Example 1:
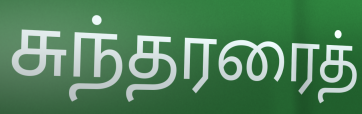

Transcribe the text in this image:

சுந்தரரைத்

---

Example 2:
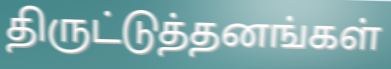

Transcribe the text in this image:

திருட்டுத்தனங்கள்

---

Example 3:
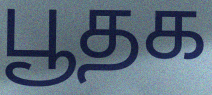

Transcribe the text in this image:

பூதக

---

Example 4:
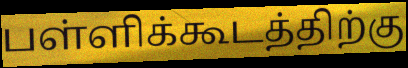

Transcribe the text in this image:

பள்ளிக்கூடத்திற்கு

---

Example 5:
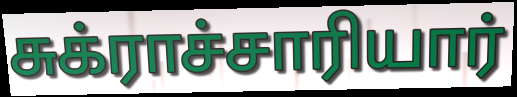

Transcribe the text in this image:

சுக்ராச்சாரியார்